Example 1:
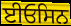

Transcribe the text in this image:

ਈਓਸਿਨ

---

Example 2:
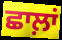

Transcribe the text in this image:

ਛਾਲ਼ਾਂ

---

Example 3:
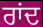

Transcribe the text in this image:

ਰਾਂਦ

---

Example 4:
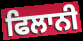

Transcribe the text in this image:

ਫਿਲਾਨੀ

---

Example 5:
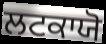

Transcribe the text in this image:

ਲਟਕਾਯੋ